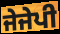
ਜੇਜੇਪੀ